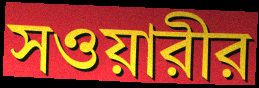
সওয়ারীর